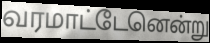
வரமாட்டேனென்று